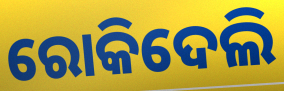
ରୋକିଦେଲି